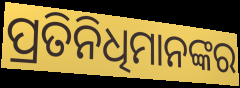
ପ୍ରତିନିଧିମାନଙ୍କର